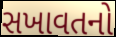
સખાવતનો